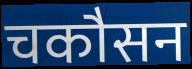
चकौसन